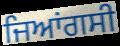
ਜਿਆਂਗਸੀ